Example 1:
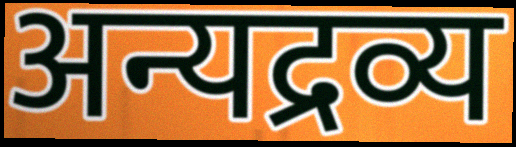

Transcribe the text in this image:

अन्यद्रव्य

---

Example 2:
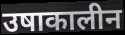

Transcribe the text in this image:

उषाकालीन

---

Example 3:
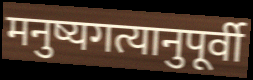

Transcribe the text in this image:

मनुष्यगत्यानुपूर्वी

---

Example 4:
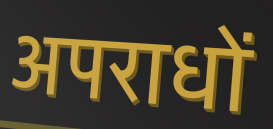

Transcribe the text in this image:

अपराधों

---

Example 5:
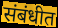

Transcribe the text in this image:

संबंधीत